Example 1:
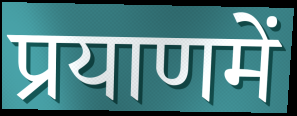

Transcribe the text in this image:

प्रयाणमें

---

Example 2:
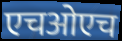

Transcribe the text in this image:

एचओएच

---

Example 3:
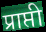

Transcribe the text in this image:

प्राप्ती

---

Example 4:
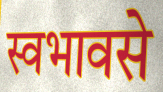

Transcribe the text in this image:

स्वभावसे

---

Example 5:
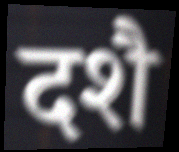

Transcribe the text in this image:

दशै